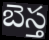
బెస్త